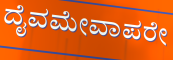
ದೈವಮೇವಾಪರೇ